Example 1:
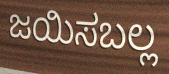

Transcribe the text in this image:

ಜಯಿಸಬಲ್ಲ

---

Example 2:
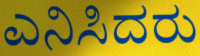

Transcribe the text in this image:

ಎನಿಸಿದರು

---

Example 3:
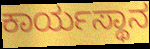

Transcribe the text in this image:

ಕಾರ್ಯಸ್ಥಾನ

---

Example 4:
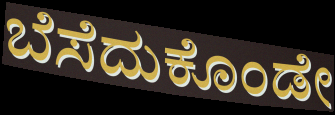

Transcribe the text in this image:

ಬೆಸೆದುಕೊಂಡೇ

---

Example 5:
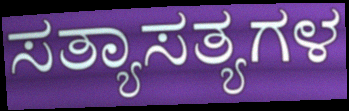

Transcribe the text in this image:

ಸತ್ಯಾಸತ್ಯಗಳ